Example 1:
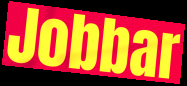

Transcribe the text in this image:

Jobbar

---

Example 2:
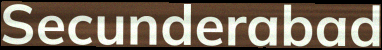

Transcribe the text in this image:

Secunderabad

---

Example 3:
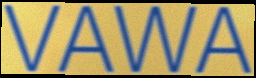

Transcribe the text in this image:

VAWA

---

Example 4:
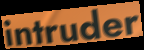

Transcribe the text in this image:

intruder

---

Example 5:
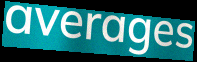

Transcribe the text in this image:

averages